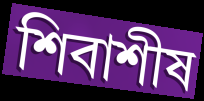
শিবাশীষ